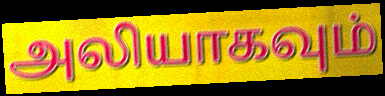
அலியாகவும்